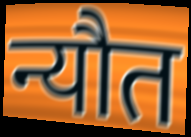
न्यौत